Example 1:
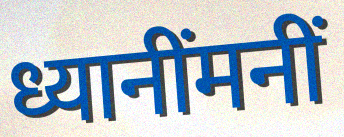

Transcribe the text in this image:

ध्यानींमनीं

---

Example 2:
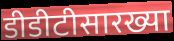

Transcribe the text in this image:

डीडीटीसारख्या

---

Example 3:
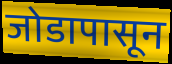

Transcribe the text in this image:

जोडापासून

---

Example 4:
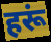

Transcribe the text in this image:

हरूं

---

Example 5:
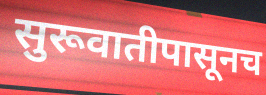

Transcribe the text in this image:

सुरूवातीपासूनच